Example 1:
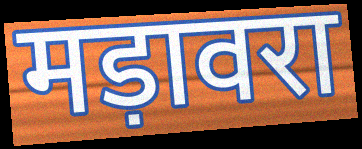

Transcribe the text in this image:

मड़ावरा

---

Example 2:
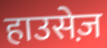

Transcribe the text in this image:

हाउसेज़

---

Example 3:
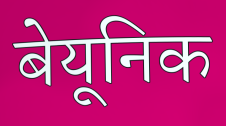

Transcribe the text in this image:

बेयूनिक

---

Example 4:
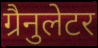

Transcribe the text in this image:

ग्रैनुलेटर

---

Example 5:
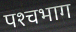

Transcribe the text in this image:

पश्चभाग